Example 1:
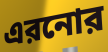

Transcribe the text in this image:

এরনোর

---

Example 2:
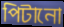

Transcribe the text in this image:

পিটানো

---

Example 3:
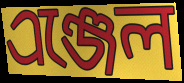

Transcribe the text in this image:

এঞ্জেল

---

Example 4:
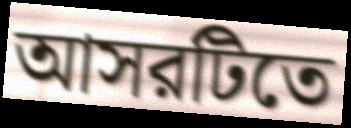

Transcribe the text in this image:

আসরটিতে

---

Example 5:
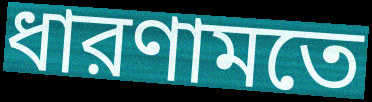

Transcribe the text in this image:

ধারণামতে